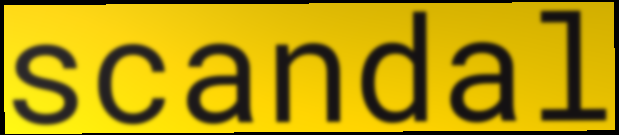
scandal